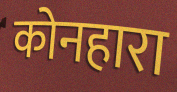
कोनहारा